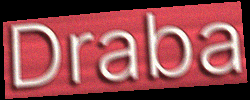
Draba